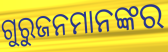
ଗୁରୁଜନମାନଙ୍କର